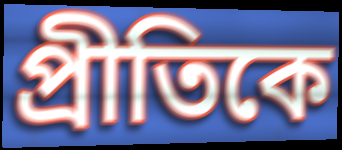
প্রীতিকে